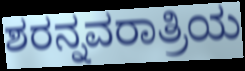
ಶರನ್ನವರಾತ್ರಿಯ